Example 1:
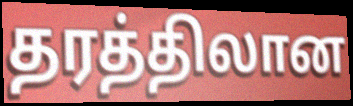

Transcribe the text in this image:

தரத்திலான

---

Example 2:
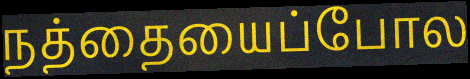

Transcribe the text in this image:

நத்தையைப்போல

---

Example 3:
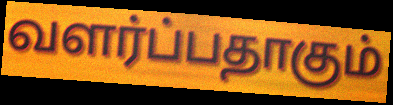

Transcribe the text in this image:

வளர்ப்பதாகும்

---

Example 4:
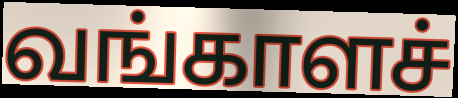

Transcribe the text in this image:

வங்காளச்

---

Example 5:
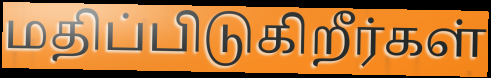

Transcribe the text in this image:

மதிப்பிடுகிறீர்கள்